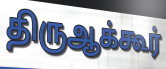
திருஆக்கூர்